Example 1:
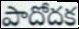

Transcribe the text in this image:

పాదోదక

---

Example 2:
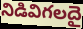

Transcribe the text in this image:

నిడివిగలదై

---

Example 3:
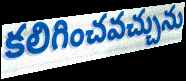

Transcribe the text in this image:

కలిగించవచ్చును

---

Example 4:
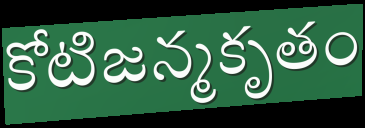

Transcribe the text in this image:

కోటిజన్మకృతం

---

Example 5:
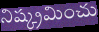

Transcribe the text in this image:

నిష్క్రమించు